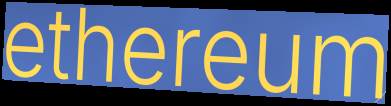
ethereum